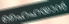
ഹൈഹയാൻ